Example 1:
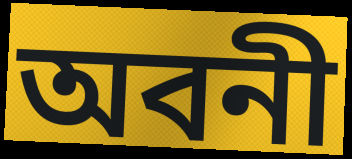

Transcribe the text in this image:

অবনী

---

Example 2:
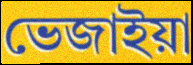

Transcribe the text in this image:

ভেজাইয়া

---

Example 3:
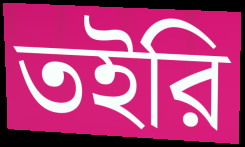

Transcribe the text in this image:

তইরি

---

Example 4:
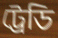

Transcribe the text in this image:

ট্রেডি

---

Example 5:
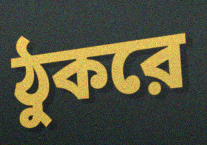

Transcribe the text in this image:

ঠুকরে